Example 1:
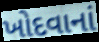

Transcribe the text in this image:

ખોદવાનાં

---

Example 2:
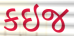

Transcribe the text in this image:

કઇજ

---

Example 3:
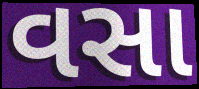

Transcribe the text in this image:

વસા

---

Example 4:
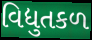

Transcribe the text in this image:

વિદ્યુતકળ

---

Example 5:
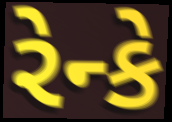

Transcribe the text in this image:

રેન્કે